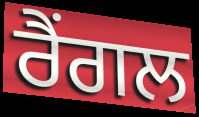
ਰੈਂਗਲ